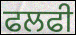
ਫਲਫੀ